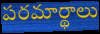
పరమార్థాలు